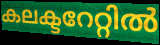
കലക്ടറേറ്റിൽ